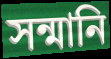
সন্মানি